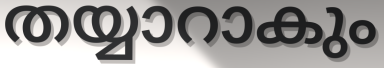
തയ്യാറാകും